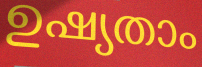
ഉഷ്യതാം